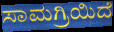
ಸಾಮಗ್ರಿಯಿದೆ